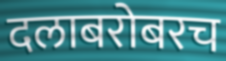
दलाबरोबरच